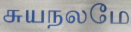
சுயநலமே